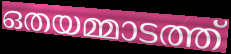
ഒതയമ്മാടത്ത്